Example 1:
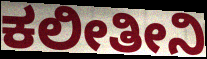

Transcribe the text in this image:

ಕಲೀತೀನಿ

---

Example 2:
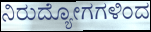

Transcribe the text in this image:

ನಿರುದ್ಯೋಗಗಳಿಂದ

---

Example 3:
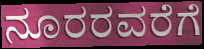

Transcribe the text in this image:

ನೂರರವರೆಗೆ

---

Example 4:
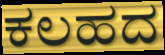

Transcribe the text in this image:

ಕಲಹದ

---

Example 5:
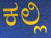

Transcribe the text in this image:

ಕಲ್ಲಿ